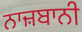
ਨਾਜ਼ਬਾਨੀ